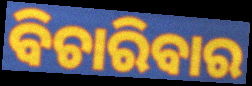
ବିଚାରିବାର